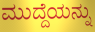
ಮುದ್ದೆಯನ್ನು